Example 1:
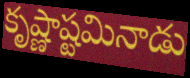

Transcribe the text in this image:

కృష్ణాష్టమినాడు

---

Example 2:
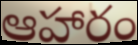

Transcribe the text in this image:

ఆహారం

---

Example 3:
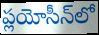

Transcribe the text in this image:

ప్లయోసీన్‌లో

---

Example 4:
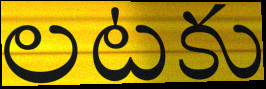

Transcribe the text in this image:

లటకు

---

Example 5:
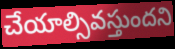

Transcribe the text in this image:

చేయాల్సివస్తుందని